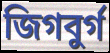
জিগবুর্গ